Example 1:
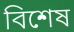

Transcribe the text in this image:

বিশেষ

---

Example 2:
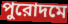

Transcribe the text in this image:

পুরোদমে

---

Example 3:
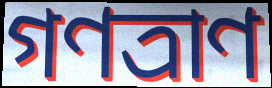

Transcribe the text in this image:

গণত্রাণ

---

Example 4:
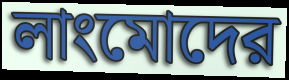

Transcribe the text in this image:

লাংমোদের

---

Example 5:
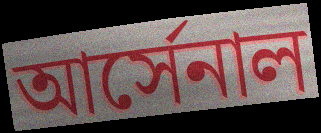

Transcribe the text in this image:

আর্সেনাল